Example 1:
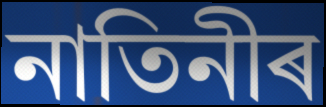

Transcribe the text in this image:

নাতিনীৰ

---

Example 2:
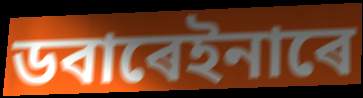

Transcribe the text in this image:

ডবাৰেইনাৰে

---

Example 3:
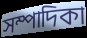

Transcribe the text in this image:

সম্পাদিকা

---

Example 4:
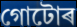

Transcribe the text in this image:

গোটোৰ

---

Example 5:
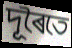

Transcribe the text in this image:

দূৰৈতে